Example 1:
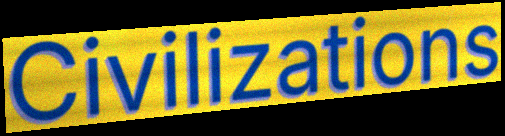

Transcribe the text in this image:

Civilizations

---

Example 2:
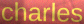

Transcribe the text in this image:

charles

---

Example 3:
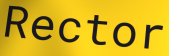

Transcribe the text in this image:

Rector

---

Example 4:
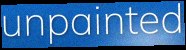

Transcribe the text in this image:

unpainted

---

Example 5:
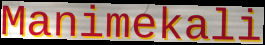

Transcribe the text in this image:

Manimekali